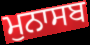
ਮੁਨਾਸਬ